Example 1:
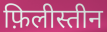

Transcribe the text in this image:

फ़िलीस्तीन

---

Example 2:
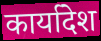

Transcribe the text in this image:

कार्यादेश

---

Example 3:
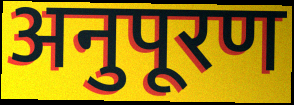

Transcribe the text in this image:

अनुपूरण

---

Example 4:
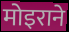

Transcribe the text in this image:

मोइराने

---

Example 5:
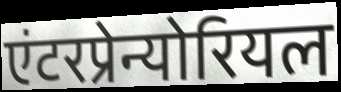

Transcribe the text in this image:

एंटरप्रेन्योरियल